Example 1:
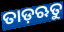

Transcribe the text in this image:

ତାଡ଼ଋତୁ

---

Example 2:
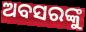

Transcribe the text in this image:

ଅବସରଙ୍କୁ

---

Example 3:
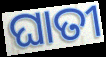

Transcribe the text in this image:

ଘାତୀ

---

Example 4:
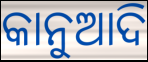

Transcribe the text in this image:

କାନୁଆଦି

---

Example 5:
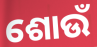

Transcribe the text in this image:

ଶୋଉଁ